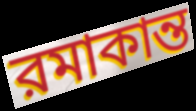
রমাকান্ত